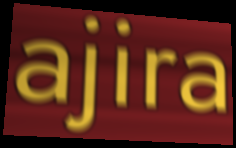
ajira